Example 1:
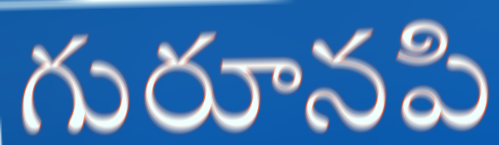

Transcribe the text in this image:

గురూనపి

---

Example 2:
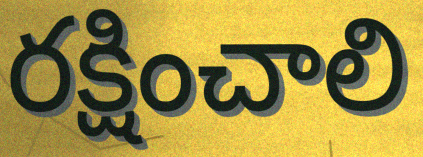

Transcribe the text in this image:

రక్షించాలి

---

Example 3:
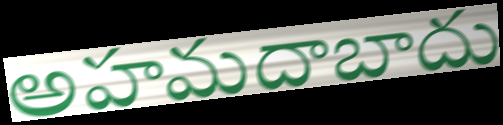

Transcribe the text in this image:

అహమదాబాదు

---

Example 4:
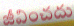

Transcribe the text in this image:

జీవించదు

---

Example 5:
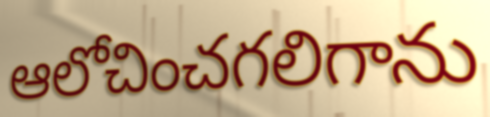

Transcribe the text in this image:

ఆలోచించగలిగాను